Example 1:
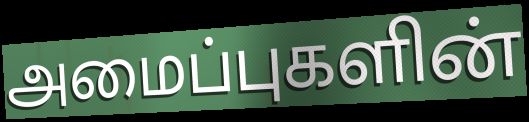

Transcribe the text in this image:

அமைப்புகளின்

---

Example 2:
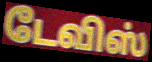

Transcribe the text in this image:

டேவிஸ்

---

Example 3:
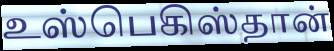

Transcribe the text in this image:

உஸ்பெகிஸ்தான்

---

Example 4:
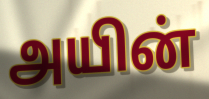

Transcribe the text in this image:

அயின்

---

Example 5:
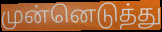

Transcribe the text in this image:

முன்னெடுத்து